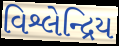
વિશ્લેન્દ્રિય